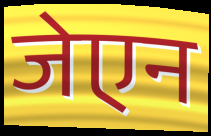
जेएन